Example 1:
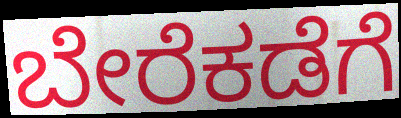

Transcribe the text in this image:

ಬೇರೆಕಡೆಗೆ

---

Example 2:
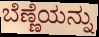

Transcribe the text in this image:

ಬೆಣ್ಣೆಯನ್ನು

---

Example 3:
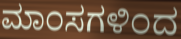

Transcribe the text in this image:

ಮಾಂಸಗಳಿಂದ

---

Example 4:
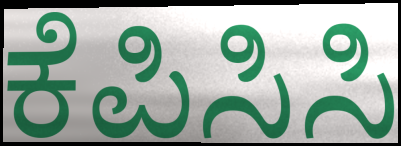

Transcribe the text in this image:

ಕೆಪಿಸಿಸಿ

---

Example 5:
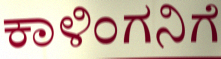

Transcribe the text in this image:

ಕಾಳಿಂಗನಿಗೆ